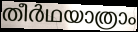
തീർഥയാത്രാം